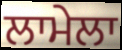
ਲਾਮੇਲਾ